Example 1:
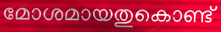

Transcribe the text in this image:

മോശമായതുകൊണ്ട്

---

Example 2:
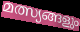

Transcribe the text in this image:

മത്സ്യങ്ങളും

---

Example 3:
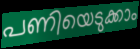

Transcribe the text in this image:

പണിയെടുക്കാം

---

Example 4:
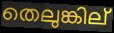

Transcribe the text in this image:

തെലുങ്കില്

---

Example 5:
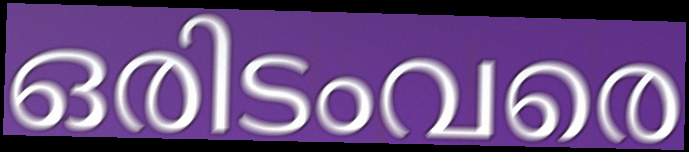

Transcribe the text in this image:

ഒരിടംവരെ